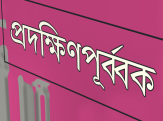
প্রদক্ষিণপূর্ব্বক